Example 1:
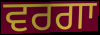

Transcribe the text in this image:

ਵਰਗਾ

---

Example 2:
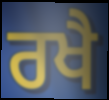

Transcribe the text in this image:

ਰਖੈ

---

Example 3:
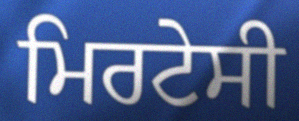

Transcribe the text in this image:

ਮਿਰਟੇਸੀ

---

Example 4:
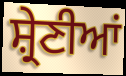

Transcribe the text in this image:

ਸ਼੍ਰੇਣੀਆਂ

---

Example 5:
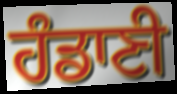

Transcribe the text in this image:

ਹੰਡਾਣੀ